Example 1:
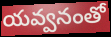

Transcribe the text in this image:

యవ్వనంతో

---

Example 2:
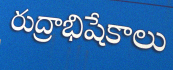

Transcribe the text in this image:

రుద్రాభిషేకాలు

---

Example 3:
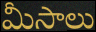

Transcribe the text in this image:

మీసాలు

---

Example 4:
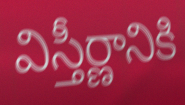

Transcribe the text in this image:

విస్తీర్ణానికి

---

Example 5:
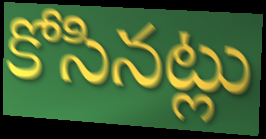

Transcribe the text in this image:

కోసినట్లు